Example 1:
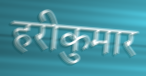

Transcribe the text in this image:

हरीकुमार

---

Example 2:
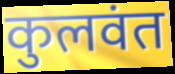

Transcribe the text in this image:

कुलवंत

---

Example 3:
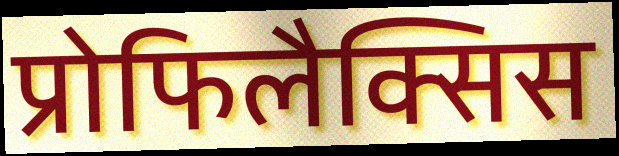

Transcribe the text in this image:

प्रोफिलैक्सिस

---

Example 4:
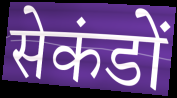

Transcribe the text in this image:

सेकंडों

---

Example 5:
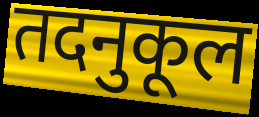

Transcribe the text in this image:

तदनुकूल